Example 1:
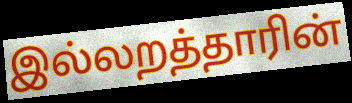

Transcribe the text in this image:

இல்லறத்தாரின்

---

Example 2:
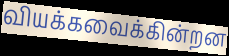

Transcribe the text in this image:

வியக்கவைக்கின்றன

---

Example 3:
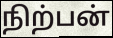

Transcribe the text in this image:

நிற்பன்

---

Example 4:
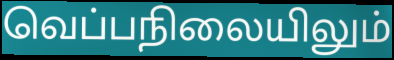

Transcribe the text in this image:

வெப்பநிலையிலும்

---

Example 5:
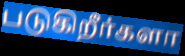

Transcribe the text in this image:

படுகிறீர்களா